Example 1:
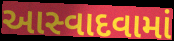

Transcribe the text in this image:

આસ્વાદવામાં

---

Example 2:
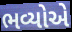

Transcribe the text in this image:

ભવ્યોએ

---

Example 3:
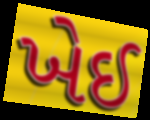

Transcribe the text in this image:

ખેઈ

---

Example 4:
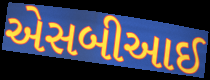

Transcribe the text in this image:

એસબીઆઈ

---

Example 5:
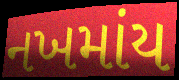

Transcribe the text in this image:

નખમાંય